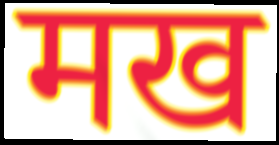
मख